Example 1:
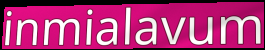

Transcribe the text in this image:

inmialavum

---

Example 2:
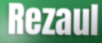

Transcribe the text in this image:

Rezaul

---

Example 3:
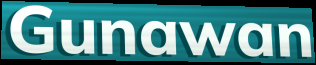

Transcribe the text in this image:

Gunawan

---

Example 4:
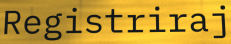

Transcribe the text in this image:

Registriraj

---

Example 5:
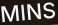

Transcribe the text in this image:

MINS